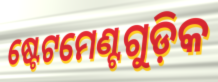
ଷ୍ଟେଟମେଣ୍ଟଗୁଡ଼ିକ